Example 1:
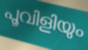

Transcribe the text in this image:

പൂവിളിയും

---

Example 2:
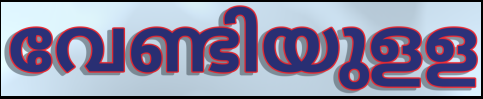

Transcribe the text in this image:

വേണ്ടിയുളള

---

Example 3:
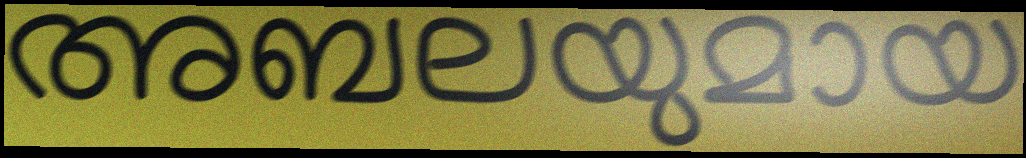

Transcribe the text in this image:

അബലയുമായ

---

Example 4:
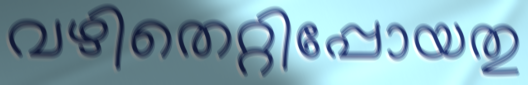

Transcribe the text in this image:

വഴിതെറ്റിപ്പോയതു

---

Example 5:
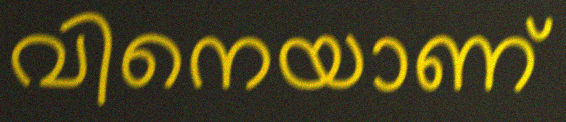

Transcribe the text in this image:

വിനെയാണ്